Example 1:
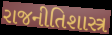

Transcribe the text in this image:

રાજનીતિશાસ્ત્ર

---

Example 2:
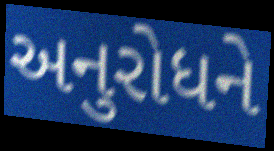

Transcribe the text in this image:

અનુરોધને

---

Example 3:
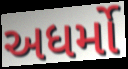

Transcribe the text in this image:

અધર્મો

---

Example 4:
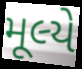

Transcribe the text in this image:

મૂલ્યે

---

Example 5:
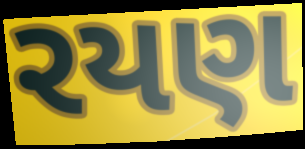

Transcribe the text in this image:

રયણ